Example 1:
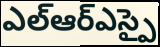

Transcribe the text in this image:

ఎల్ఆర్ఎస్పై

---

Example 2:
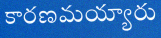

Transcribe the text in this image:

కారణమయ్యారు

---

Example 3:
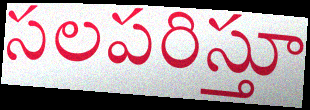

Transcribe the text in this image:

సలపరిస్తూ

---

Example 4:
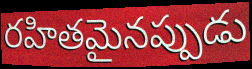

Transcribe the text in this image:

రహితమైనప్పుడు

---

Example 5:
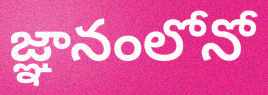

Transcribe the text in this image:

జ్ఞానంలోనో